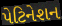
પેટિનેશન